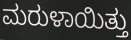
ಮರುಳಾಯಿತ್ತು